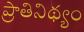
ప్రాతినిథ్యం